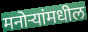
मनोऱ्यांमधील